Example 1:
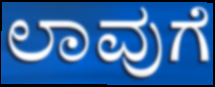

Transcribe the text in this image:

ಲಾವುಗೆ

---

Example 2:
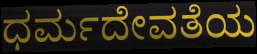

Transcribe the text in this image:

ಧರ್ಮದೇವತೆಯ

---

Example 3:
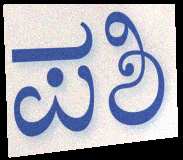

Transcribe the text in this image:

ಪಶಿ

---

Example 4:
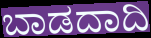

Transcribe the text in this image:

ಬಾಡದಾದಿ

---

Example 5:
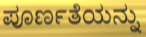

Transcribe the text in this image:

ಪೂರ್ಣತೆಯನ್ನು